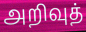
அறிவுத்